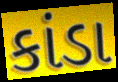
કાંડા